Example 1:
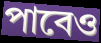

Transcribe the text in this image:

পাবেও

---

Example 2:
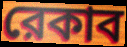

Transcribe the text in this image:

রেকাব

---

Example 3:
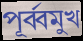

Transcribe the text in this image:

পূর্ব্বমুখ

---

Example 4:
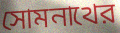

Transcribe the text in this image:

সোমনাথের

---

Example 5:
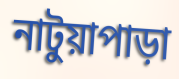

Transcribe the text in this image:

নাটুয়াপাড়া